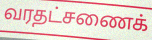
வரதட்சணைக்